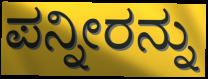
ಪನ್ನೀರನ್ನು